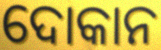
ଦୋକାନ